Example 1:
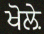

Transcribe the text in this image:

ਖੋਲ਼ੇ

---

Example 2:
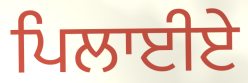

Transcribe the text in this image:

ਪਿਲਾਈਏ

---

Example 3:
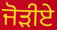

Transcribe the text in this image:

ਜੋੜੀਏ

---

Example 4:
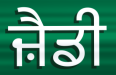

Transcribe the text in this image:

ਜ਼ੈਡੀ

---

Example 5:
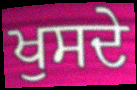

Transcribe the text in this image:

ਖੁਸਦੇ